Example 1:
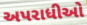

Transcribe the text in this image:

અપરાધીઓ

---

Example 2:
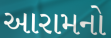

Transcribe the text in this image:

આરામનો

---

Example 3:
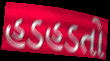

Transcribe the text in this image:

હડહડતો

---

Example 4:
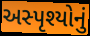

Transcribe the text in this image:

અસ્પૃશ્યોનું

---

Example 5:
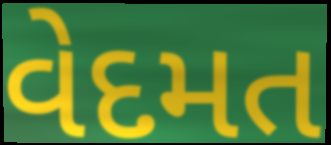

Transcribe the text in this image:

વેદમત